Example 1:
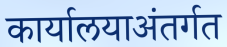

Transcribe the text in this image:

कार्यालयाअंतर्गत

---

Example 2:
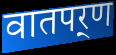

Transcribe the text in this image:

वातपर्ण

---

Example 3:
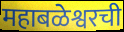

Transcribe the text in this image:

महाबळेश्वरची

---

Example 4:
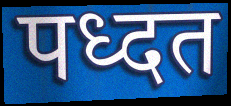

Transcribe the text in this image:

पध्दत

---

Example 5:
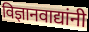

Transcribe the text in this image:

विज्ञानवाद्यांनी